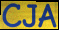
CJA